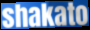
shakato